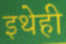
इथेही